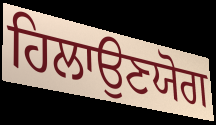
ਹਿਲਾਉਣਯੋਗ